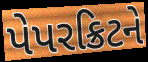
પેપરક્રિટને